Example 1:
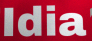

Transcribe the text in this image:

Idia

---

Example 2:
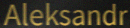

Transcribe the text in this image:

Aleksandr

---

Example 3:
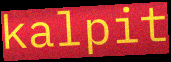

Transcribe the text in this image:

kalpit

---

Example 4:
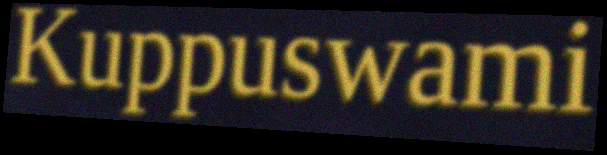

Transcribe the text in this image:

Kuppuswami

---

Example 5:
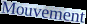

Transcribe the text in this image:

Mouvement